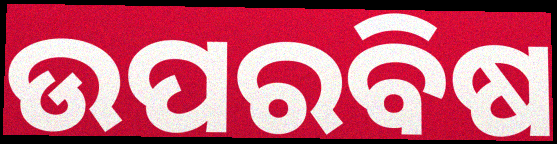
ଉପରବିଷ